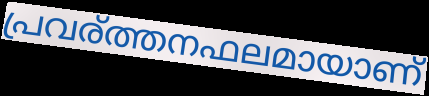
പ്രവര്ത്തനഫലമായാണ്